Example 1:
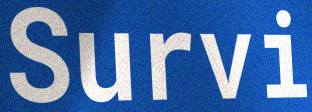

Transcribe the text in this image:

Survi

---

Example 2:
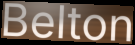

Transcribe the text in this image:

Belton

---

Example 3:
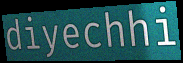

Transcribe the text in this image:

diyechhi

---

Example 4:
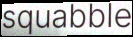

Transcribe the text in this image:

squabble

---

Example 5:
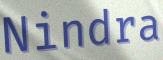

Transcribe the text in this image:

Nindra